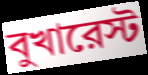
বুখারেস্ট